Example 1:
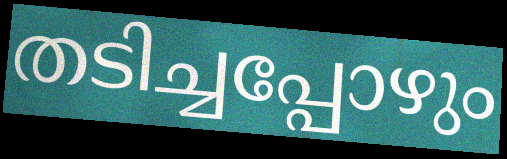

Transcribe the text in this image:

തടിച്ചപ്പോഴും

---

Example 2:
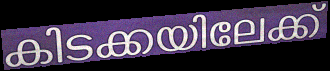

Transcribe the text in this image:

കിടക്കയിലേക്ക്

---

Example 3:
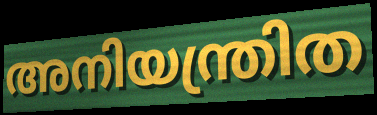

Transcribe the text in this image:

അനിയന്ത്രിത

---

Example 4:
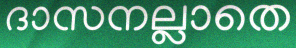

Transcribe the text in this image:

ദാസനല്ലാതെ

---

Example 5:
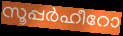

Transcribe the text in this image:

സൂപ്പർഹീറോ